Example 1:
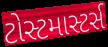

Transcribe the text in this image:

ટોસ્ટમાસ્ટર્સ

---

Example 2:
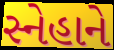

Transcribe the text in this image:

સ્નેહાને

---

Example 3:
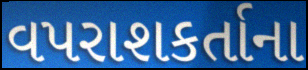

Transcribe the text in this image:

વપરાશકર્તાના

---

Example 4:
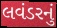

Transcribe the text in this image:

લવંડરનું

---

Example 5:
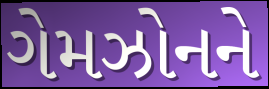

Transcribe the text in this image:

ગેમઝોનને